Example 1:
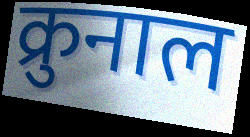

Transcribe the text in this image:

क्रुनाल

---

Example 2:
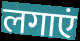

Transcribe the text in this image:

लगाएं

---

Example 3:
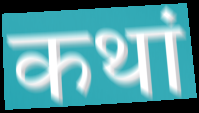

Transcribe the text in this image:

कथां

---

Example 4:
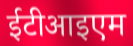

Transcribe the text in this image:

ईटीआइएम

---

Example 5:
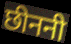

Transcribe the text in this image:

छीननी